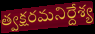
త్వక్షరమనిర్దేశ్య